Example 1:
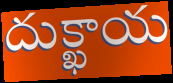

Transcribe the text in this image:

దుక్ఖాయ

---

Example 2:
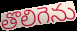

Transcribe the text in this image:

తొలిగెను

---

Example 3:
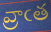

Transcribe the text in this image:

వ్రాఁత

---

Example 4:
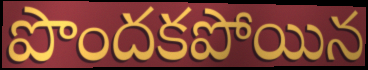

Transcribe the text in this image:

పొందకపోయిన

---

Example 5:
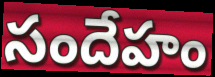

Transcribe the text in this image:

సందేహం